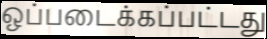
ஒப்படைக்கப்பட்டது